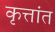
कृत्तांत